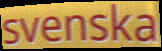
svenska